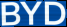
BYD